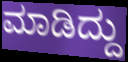
ಮಾಡಿದ್ದು